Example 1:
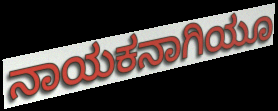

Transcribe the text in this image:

ನಾಯಕನಾಗಿಯೂ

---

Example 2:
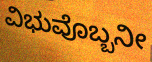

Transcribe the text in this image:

ವಿಭುವೊಬ್ಬನೀ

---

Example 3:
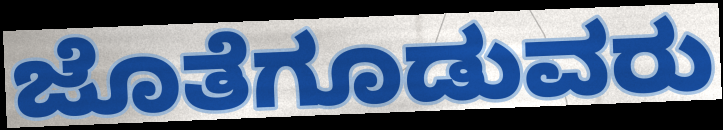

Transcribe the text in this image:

ಜೊತೆಗೂಡುವರು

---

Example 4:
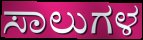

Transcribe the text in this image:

ಸಾಲುಗಳ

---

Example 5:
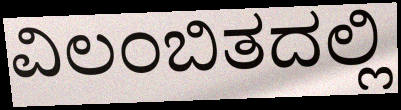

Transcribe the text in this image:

ವಿಲಂಬಿತದಲ್ಲಿ